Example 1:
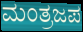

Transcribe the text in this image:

ಮಂತ್ರಜಪ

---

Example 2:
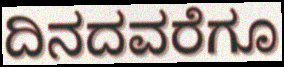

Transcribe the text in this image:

ದಿನದವರೆಗೂ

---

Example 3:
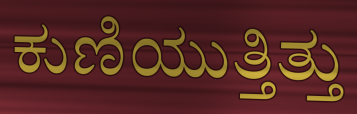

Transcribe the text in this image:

ಕುಣಿಯುತ್ತಿತ್ತು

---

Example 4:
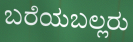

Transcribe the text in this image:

ಬರೆಯಬಲ್ಲರು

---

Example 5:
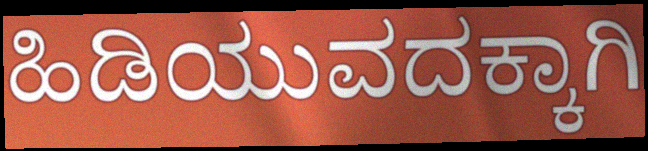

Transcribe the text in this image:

ಹಿಡಿಯುವದಕ್ಕಾಗಿ